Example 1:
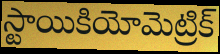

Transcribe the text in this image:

స్టాయికియోమెట్రిక్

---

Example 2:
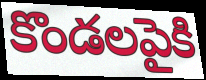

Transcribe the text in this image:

కొండలపైకి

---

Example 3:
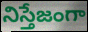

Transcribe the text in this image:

నిస్తేజంగా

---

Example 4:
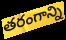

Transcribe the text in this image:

తరంగాన్ని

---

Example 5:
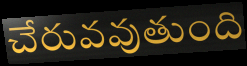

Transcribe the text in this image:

చేరువవుతుంది